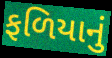
ફળિયાનું